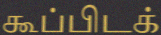
கூப்பிடக்